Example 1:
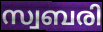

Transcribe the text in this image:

സ്വബരി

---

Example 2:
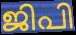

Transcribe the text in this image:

ജിപി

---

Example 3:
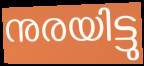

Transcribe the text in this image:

നുരയിട്ടു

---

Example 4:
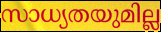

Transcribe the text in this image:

സാധ്യതയുമില്ല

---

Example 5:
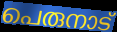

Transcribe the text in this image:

പെരുനാട്